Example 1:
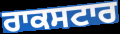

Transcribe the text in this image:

ਰਾਕਸਟਾਰ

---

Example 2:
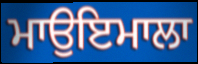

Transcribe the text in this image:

ਮਾਉਇਮਾਲਾ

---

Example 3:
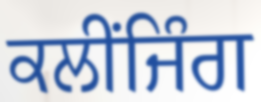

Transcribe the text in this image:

ਕਲੀਂਜਿੰਗ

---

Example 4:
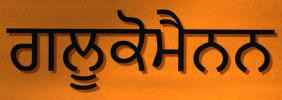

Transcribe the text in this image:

ਗਲੂਕੋਮੈਨਨ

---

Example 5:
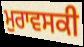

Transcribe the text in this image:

ਮੁਰਾਵਸਕੀ